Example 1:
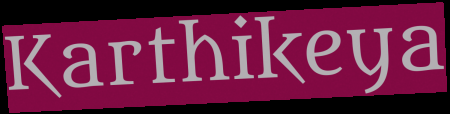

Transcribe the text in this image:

Karthikeya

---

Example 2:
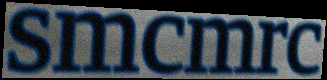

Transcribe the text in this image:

smcmrc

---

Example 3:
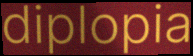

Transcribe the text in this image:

diplopia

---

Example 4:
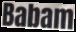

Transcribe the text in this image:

Babam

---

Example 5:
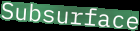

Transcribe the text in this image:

Subsurface